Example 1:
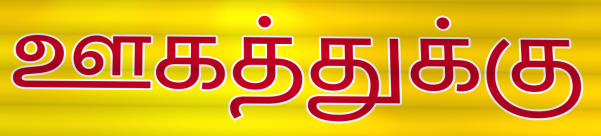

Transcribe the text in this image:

ஊகத்துக்கு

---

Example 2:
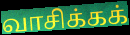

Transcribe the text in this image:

வாசிக்கக்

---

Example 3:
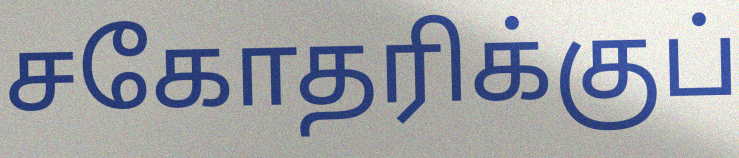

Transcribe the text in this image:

சகோதரிக்குப்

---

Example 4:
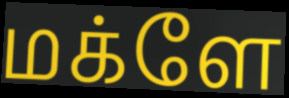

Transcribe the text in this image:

மக்ளே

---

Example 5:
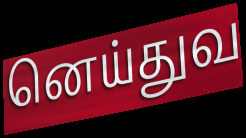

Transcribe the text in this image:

னெய்துவ